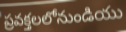
ప్రవక్తలలోనుండియు